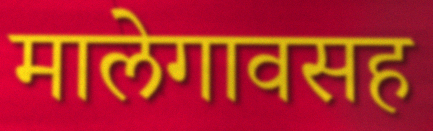
मालेगावसह